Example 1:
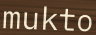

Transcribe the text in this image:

mukto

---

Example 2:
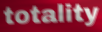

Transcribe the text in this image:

totality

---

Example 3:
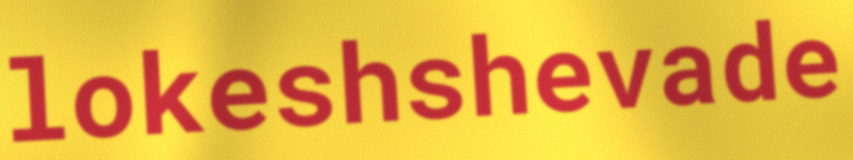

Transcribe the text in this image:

lokeshshevade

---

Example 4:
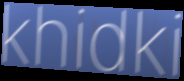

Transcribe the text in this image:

khidki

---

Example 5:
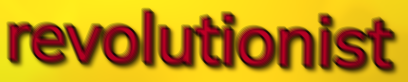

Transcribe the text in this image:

revolutionist